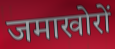
जमाखोरों